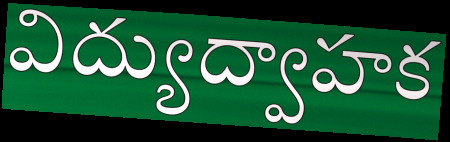
విద్యుద్వాహక